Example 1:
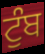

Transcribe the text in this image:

ਟੁੰਬ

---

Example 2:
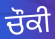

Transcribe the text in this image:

ਚੌਕੀ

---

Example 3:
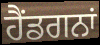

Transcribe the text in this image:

ਹੈਂਡਗਨਾਂ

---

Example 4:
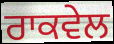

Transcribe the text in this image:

ਰਾਕਵੇਲ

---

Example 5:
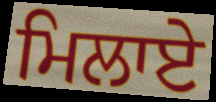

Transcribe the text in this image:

ਮਿਲਾਏ